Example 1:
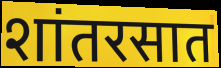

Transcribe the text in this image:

शांतरसात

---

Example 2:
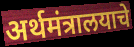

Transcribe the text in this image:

अर्थमंत्रालयाचे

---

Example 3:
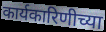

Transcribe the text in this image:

कार्यकारिणीच्या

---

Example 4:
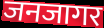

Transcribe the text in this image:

जनजागर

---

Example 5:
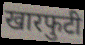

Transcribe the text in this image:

खारफुटी